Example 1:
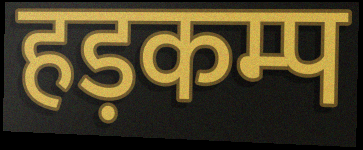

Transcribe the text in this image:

हड़कम्‍प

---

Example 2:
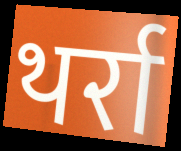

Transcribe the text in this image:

थर्रा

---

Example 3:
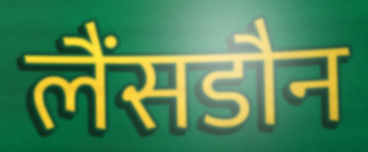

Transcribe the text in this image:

लैंसडौन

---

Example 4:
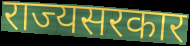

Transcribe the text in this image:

राज्यसरकार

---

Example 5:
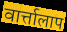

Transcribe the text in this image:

वार्त्तालाप